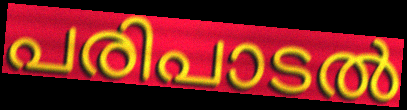
പരിപാടൽ